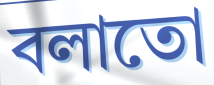
বলাতো